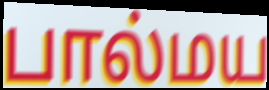
பால்மய